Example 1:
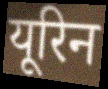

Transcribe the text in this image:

यूरिन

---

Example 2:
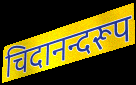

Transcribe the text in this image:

चिदानन्दरूप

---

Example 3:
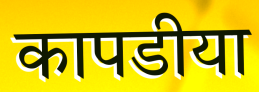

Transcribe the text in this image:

कापडीया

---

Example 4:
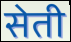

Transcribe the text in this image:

सेती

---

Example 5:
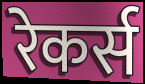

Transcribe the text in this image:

रेकर्स